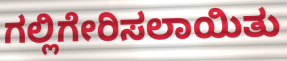
ಗಲ್ಲಿಗೇರಿಸಲಾಯಿತು